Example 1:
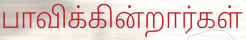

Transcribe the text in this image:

பாவிக்கின்றார்கள்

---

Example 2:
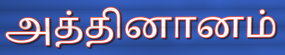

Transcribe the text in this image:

அத்தினானம்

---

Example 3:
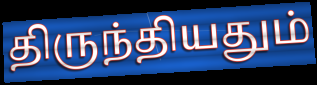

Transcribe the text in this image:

திருந்தியதும்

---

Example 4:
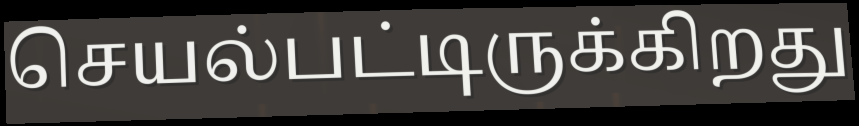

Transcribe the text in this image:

செயல்பட்டிருக்கிறது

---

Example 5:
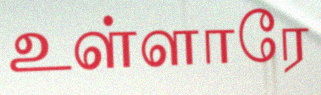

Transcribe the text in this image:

உள்ளாரே